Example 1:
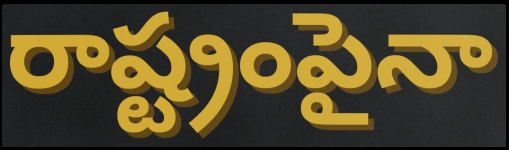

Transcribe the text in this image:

రాష్ట్రంపైనా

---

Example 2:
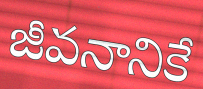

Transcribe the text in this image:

జీవనానికే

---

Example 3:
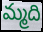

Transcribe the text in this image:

మ్మది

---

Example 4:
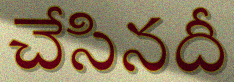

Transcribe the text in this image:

చేసినదీ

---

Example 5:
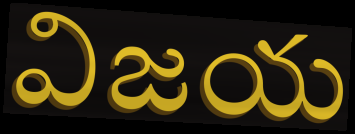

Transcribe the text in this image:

విజయ